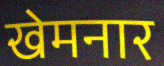
खेमनार